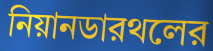
নিয়ানডারথলের